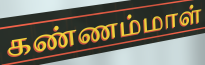
கண்ணம்மாள்